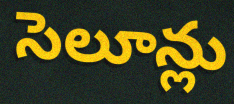
సెలూన్లు